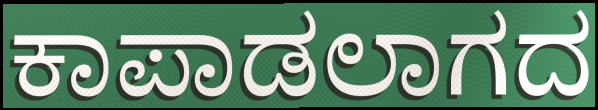
ಕಾಪಾಡಲಾಗದ